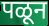
पळून